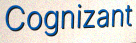
Cognizant